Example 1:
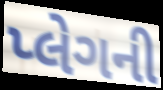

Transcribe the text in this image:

પ્લેગની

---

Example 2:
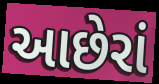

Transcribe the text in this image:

આછેરાં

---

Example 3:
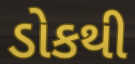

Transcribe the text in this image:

ડોકથી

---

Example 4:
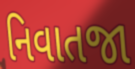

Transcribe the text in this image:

નિવાતજા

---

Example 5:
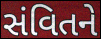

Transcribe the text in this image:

સંવિતને